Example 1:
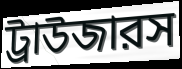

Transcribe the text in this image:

ট্রাউজারস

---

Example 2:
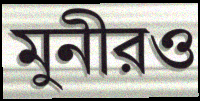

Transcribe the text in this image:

মুনীরও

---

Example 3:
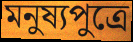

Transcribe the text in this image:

মনুষ্যপুত্রে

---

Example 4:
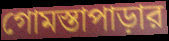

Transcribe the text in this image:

গোমস্তাপাড়ার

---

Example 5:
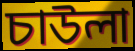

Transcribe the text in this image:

চাউলা